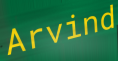
Arvind